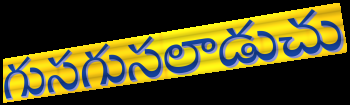
గుసగుసలాడుచు